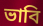
ভাবি